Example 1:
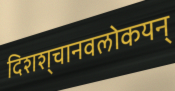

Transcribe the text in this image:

दिशश्चानवलोकयन्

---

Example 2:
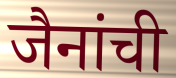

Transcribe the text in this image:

जैनांची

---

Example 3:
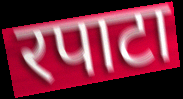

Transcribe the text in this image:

रपाटा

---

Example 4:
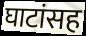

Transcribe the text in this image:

घाटांसह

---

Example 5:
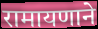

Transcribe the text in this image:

रामायणाने